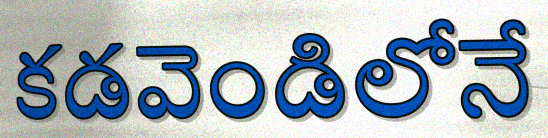
కడవెండిలోనే